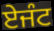
ਏਜੰਟ